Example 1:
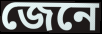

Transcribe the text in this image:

জেনে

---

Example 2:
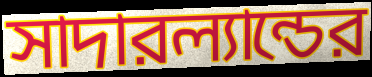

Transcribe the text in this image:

সাদারল্যান্ডের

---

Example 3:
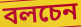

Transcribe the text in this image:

বলচেন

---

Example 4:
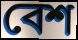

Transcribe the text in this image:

বেশ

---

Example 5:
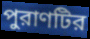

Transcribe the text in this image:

পুরাণটির